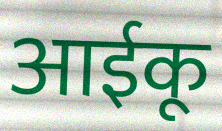
आईकू